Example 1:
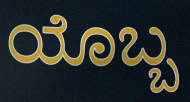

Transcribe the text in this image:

ಯೊಬ್ಬ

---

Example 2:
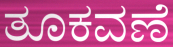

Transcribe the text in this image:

ತೂಕವಣೆ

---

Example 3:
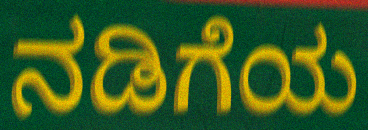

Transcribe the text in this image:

ನಡಿಗೆಯ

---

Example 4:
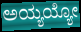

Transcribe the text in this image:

ಅಯ್ಯಯ್ಯೋ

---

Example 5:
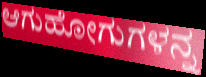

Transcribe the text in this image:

ಆಗುಹೋಗುಗಳನ್ನ